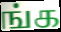
ங்க